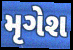
મૃગેશ